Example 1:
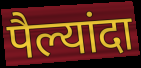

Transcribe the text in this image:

पैल्यांदा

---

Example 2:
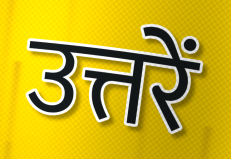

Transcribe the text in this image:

उत्तरें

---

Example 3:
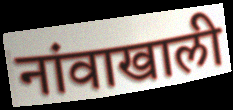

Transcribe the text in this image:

नांवाखाली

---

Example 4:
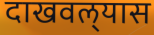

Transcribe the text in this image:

दाखवल्यास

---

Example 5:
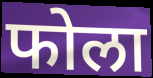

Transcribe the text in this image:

फोला